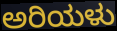
ಅರಿಯಳು